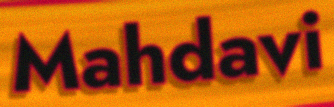
Mahdavi